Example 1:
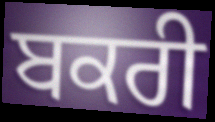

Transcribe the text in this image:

ਬਕਰੀ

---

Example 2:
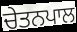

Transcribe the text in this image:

ਚੇਤਨਪਾਲ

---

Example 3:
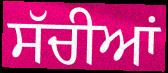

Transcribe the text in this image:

ਸੱਚੀਆਂ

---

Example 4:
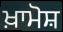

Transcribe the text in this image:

ਖ਼ਾਮੋਸ਼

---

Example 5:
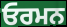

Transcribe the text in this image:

ਓਰਮਨ